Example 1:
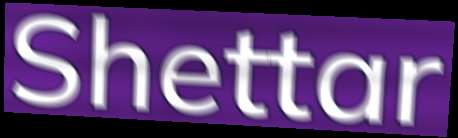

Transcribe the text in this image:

Shettar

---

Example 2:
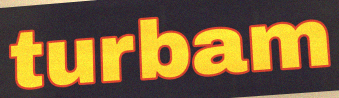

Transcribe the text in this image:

turbam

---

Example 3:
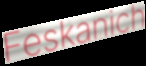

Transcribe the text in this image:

Feskanich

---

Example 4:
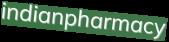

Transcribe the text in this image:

indianpharmacy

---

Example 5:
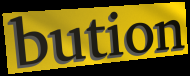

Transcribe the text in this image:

bution